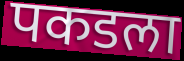
पकडला